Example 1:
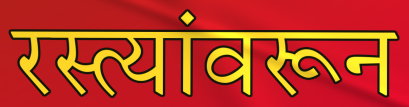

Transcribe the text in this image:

रस्त्यांवरून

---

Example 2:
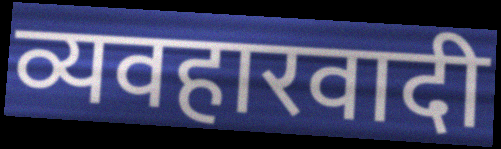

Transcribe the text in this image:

व्यवहारवादी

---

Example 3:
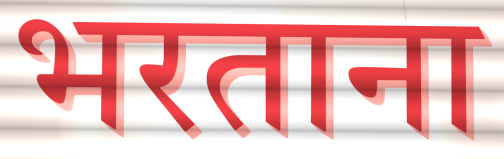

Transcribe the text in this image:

भरताना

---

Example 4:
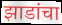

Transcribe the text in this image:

झाडांचा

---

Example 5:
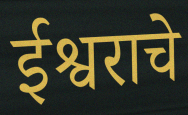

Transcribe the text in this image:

ईश्वराचे